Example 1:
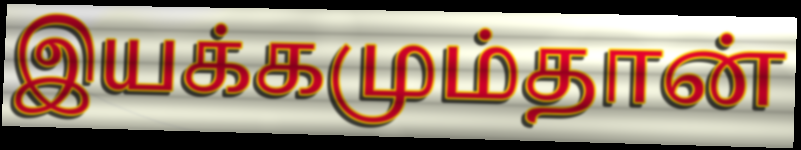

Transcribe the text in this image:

இயக்கமும்தான்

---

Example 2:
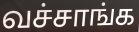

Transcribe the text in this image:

வச்சாங்க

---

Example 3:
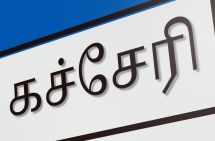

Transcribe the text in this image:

கச்சேரி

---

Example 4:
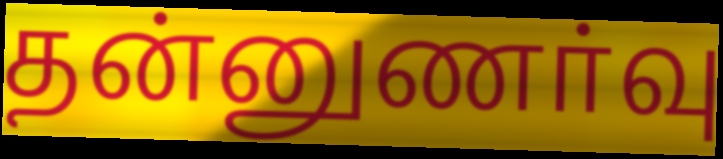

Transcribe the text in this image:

தன்னுணர்வு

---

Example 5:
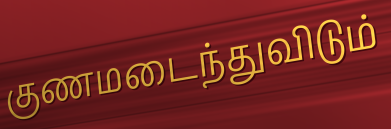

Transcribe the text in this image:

குணமடைந்துவிடும்